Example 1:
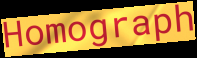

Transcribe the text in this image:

Homograph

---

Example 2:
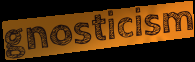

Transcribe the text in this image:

gnosticism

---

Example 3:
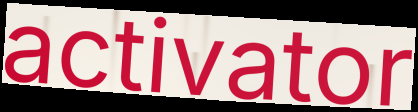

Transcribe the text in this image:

activator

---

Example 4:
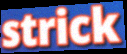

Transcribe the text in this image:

strick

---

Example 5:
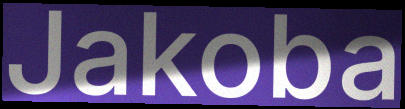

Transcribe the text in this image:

Jakoba